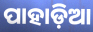
ପାହାଡ଼ିଆ